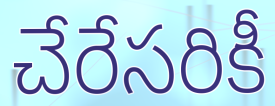
చేరేసరికీ